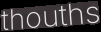
thouths